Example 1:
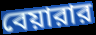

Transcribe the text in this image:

বেয়ারার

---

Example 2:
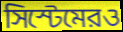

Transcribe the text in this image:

সিস্টেমেরও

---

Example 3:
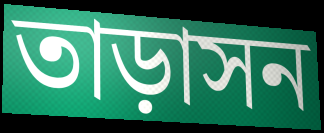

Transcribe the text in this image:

তাড়াসন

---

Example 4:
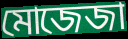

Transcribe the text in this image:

মোজেজা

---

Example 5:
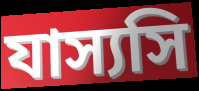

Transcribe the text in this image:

যাস্যসি